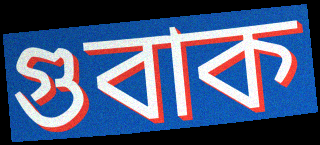
গুবাক